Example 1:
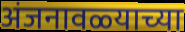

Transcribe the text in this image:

अंजनावळ्याच्या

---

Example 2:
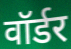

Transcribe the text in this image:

वॉर्डर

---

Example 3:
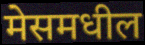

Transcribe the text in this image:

मेसमधील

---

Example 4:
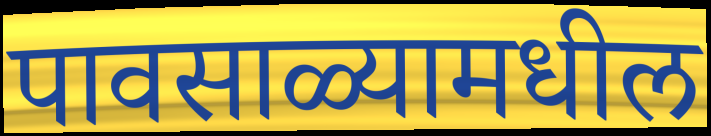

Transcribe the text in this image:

पावसाळ्यामधील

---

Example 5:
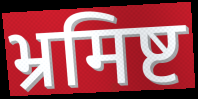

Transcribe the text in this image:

भ्रमिष्ट